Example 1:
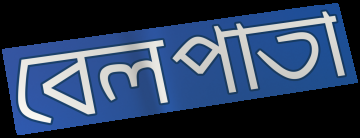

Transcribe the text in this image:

বেলপাতা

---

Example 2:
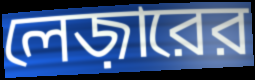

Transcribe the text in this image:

লেজ়ারের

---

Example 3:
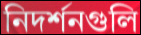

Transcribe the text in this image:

নিদর্শনগুলি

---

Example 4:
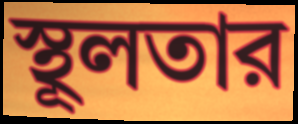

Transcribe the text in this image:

স্থূলতার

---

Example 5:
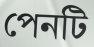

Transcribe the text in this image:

পেনটি